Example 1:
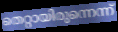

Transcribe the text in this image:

തെറ്റായിരുന്നെന്ന്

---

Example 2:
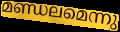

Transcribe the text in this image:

മണ്ഡലമെന്നു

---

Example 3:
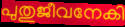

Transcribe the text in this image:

പുതുജീവനേകി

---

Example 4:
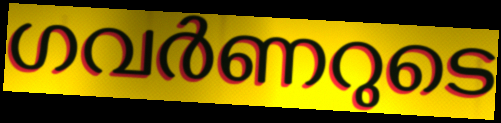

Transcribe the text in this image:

ഗവർണറുടെ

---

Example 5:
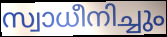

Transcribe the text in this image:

സ്വാധീനിച്ചും